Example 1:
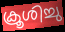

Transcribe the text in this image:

ക്രൂശിച്ചു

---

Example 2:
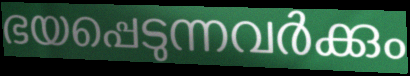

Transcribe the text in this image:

ഭയപ്പെടുന്നവർക്കും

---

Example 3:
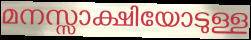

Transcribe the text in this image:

മനസ്സാക്ഷിയോടുള്ള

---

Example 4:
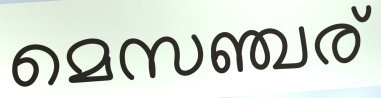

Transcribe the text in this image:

മെസഞ്ചര്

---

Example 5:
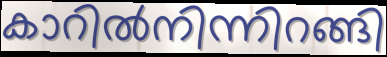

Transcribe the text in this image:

കാറിൽനിന്നിറങ്ങി